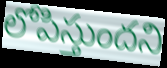
లోపిస్తుందని